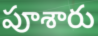
పూశారు